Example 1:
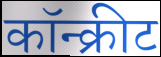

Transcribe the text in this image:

कॉन्क्रीट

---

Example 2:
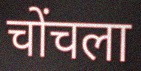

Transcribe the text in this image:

चोंचला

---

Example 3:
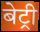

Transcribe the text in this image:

बेट्री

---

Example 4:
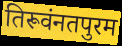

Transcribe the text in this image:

तिरूवंनतपुरम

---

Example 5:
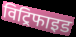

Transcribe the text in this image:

विट्रिफाइड